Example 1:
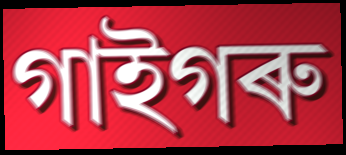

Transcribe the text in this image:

গাইগৰু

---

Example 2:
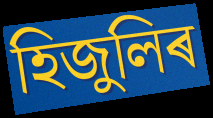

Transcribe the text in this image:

হিজুলিৰ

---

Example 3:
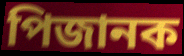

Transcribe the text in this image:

পিজানক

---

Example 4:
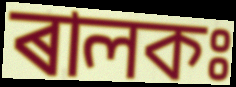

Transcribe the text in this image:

ৰালকঃ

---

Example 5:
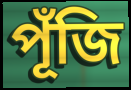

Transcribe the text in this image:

পূঁজি